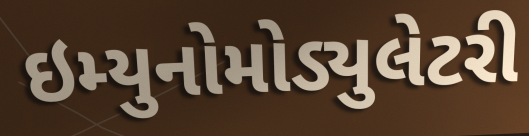
ઇમ્યુનોમોડ્યુલેટરી